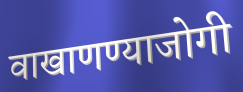
वाखाणण्याजोगी